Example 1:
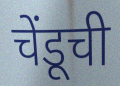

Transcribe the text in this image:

चेंडूची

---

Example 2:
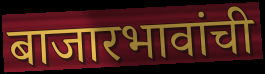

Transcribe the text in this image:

बाजारभावांची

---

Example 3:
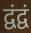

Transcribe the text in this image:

द्वंद्वं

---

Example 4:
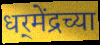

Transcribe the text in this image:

धर्मेंद्रच्या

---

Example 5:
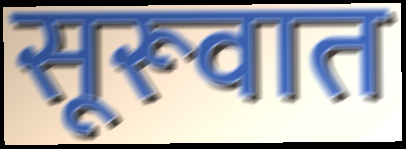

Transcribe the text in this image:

सूरूवात